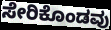
ಸೇರಿಕೊಂಡವು